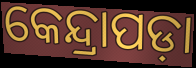
କେନ୍ଦ୍ରାପଡ଼ା